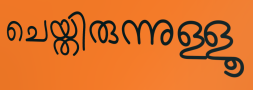
ചെയ്തിരുന്നുള്ളൂ